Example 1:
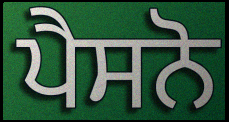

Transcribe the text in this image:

ਪੈਸਨੋ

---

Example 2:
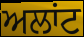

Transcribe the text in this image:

ਅਲਾਂਟ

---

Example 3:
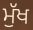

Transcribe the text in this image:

ਮੁੱਖ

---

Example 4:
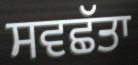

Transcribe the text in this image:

ਸਵਛੱਤਾ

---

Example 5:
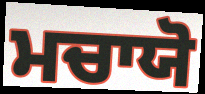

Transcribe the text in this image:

ਮਚਾਯੋ